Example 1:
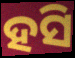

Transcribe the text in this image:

ହସି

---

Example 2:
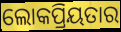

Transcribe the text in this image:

ଲୋକପ୍ରିୟତାର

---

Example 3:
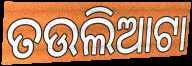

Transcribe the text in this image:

ତଉଲିଆଟା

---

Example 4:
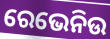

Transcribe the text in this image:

ରେଭେନିଉ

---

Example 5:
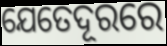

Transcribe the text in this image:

ଯେତେଦୂରରେ